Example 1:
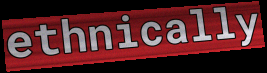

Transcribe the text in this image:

ethnically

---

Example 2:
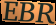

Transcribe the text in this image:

EBR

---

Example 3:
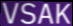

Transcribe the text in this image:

VSAK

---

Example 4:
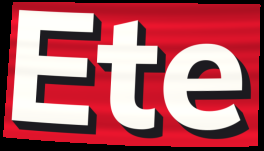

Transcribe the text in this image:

Ete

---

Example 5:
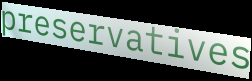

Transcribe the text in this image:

preservatives